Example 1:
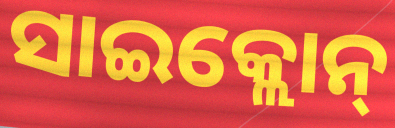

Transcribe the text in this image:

ସାଇକ୍ଲୋନ୍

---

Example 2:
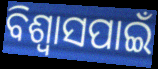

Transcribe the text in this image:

ବିଶ୍ୱାସପାଇଁ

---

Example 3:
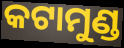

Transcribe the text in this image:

କଟାମୁଣ୍ଡ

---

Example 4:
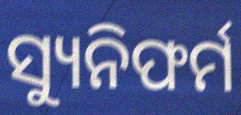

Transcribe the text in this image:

ସ୍ୟୁନିଫର୍ମ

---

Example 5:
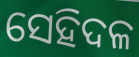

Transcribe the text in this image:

ସେହିଦଳ